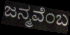
ಜನ್ಮವೆಂಬ